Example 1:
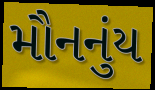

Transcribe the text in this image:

મૌનનુંય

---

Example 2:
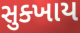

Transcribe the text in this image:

સુક્ખાય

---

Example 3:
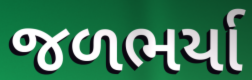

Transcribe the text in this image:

જળભર્યા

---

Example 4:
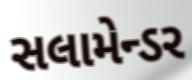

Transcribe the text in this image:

સલામેન્ડર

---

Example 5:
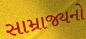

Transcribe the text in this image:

સામ્રાજ્યનો